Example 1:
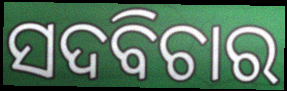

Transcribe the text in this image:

ସଦବିଚାର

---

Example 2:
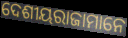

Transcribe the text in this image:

ଦେଶୀୟରାଜାମାନେ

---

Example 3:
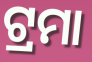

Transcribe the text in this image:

ଟ୍ରମା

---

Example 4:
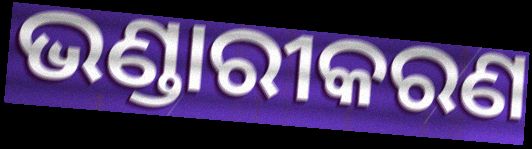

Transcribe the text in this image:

ଭଣ୍ଡାରୀକରଣ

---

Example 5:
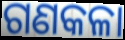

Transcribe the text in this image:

ଗଣକଳା